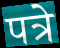
पत्रे